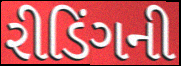
રીડિંગની